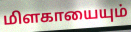
மிளகாயையும்